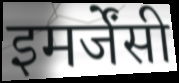
इमर्जेंसी